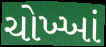
ચોખ્ખાં